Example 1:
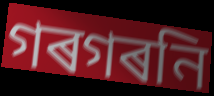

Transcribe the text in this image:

গৰগৰনি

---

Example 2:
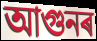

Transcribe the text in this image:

আগুনৰ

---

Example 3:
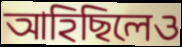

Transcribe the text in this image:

আহিছিলেও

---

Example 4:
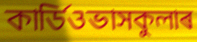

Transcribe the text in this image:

কাৰ্ডিওভাসকুলাৰ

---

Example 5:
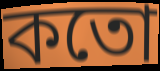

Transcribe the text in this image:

কতো